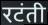
रटंती